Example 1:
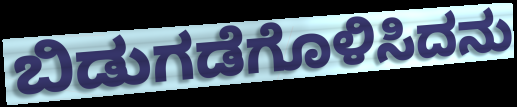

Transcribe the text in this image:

ಬಿಡುಗಡೆಗೊಳಿಸಿದನು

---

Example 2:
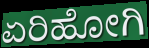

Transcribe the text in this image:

ಏರಿಹೋಗಿ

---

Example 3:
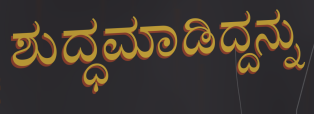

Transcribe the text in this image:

ಶುದ್ಧಮಾಡಿದ್ದನ್ನು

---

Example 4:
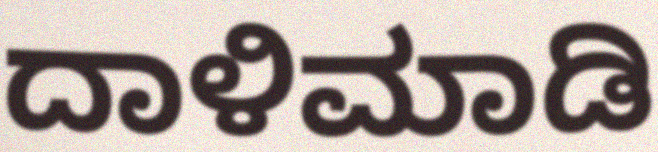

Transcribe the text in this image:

ದಾಳಿಮಾಡಿ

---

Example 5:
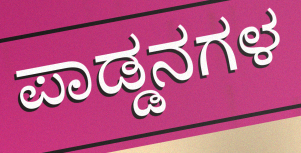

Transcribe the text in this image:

ಪಾಡ್ಡನಗಳ